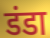
डंडा